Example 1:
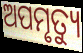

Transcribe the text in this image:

ଅପମୃତ୍ୟୁ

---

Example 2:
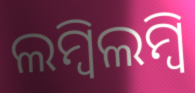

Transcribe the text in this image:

ଲମ୍ବିଲମ୍ବି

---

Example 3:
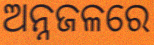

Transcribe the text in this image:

ଅନ୍ନଜଳରେ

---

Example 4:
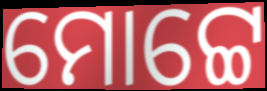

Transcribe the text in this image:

ମୋଟ୍ଟେ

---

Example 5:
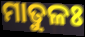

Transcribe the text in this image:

ମାତୁଳଃ